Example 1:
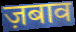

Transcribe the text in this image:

ज़बाव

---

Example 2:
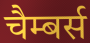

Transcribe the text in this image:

चैम्‍बर्स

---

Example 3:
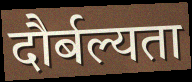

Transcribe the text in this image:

दौर्बल्यता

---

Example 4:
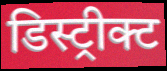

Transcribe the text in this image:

डिस्ट्रीक्ट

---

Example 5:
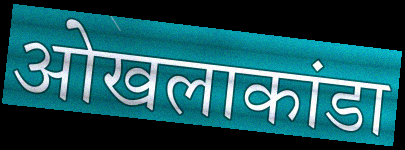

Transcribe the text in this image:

ओखलाकांडा